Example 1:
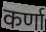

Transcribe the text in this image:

कर्णा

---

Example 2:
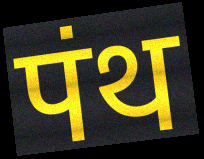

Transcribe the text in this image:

पंथ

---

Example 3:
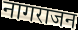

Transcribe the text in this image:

नागराजन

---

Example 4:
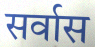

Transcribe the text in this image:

सर्वास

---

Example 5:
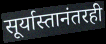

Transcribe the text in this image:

सूर्यास्तानंतरही